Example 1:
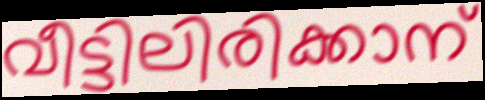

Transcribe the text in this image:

വീട്ടിലിരിക്കാന്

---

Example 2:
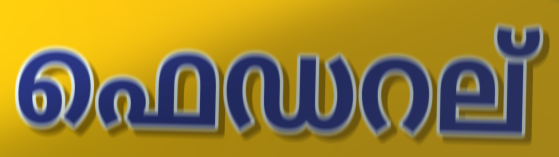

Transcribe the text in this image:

ഫെഡറല്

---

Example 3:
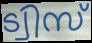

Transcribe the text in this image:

ട്വിസ്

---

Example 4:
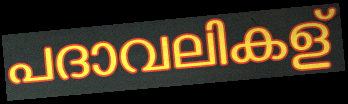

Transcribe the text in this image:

പദാവലികള്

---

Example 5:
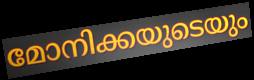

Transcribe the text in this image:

മോനിക്കയുടെയും